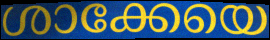
ശാക്കേയെ